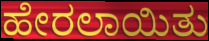
ಹೇರಲಾಯಿತು